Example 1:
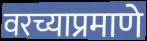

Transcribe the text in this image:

वरच्याप्रमाणे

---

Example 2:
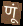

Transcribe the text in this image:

णूं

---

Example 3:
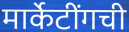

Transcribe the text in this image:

मार्केटींगची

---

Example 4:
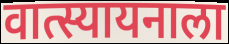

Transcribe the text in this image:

वात्स्यायनाला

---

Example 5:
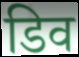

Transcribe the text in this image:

डिव